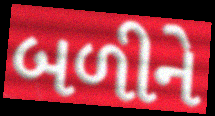
બળીને